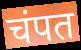
चंपत